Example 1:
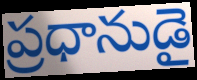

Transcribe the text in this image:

ప్రధానుడై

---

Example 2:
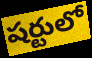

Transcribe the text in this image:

షర్టులో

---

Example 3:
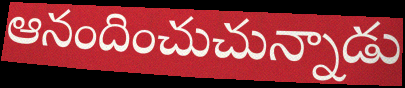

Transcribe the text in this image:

ఆనందించుచున్నాడు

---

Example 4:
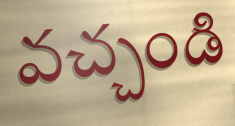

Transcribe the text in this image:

వచ్చండి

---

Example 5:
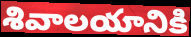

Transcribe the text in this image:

శివాలయానికి